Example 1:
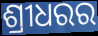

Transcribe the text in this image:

ଶ୍ରୀଧରର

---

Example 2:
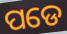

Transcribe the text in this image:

ପଡେ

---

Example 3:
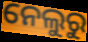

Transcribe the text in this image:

ନେଲୁରୁ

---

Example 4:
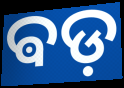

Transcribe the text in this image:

ଵଡ଼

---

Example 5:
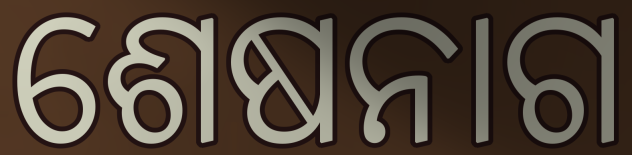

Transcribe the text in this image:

ଶେଷନାଗ